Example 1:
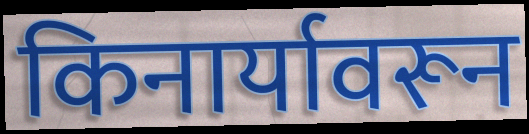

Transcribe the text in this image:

किनार्यावरून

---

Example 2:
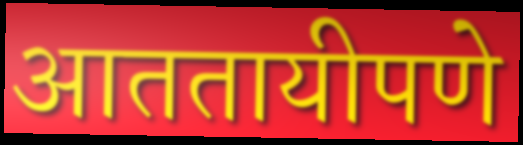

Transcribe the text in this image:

आततायीपणे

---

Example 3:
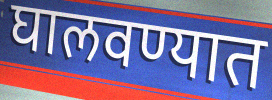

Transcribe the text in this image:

घालवण्यात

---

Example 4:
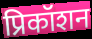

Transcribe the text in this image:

प्रिकॉशन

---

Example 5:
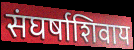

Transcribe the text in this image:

संघर्षाशिवाय